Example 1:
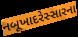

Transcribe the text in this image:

નબૂખાદરેસ્સારના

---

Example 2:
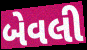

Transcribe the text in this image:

બેવલી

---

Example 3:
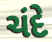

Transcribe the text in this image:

ચંદે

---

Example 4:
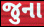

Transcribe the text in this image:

જુના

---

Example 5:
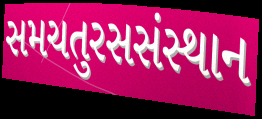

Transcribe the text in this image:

સમચતુરસસંસ્થાન